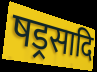
षड्रसादि